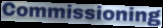
Commissioning